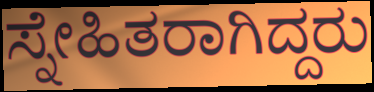
ಸ್ನೇಹಿತರಾಗಿದ್ದರು